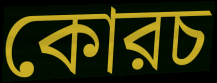
কোরচ